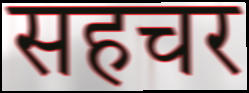
सहचर